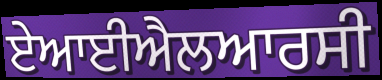
ਏਆਈਐਲਆਰਸੀ